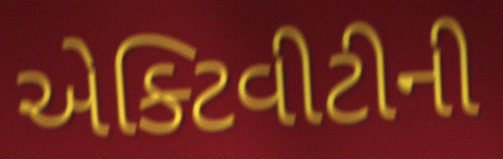
એક્ટિવીટીની